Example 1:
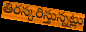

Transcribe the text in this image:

తిరస్కరిస్తున్నట్లు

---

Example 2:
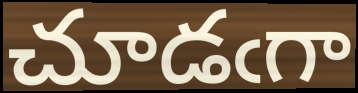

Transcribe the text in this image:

చూడఁగా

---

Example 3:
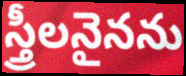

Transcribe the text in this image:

స్త్రీలనైనను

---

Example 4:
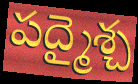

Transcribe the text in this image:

పద్మైశ్చ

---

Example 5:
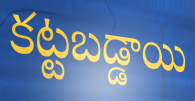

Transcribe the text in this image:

కట్టబడ్డాయి